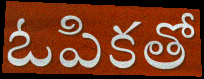
ఓపికతో